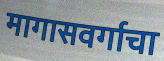
मागासवर्गाचा